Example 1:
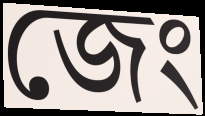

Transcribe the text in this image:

জেং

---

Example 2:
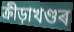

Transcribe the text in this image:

ক্ৰীড়াখণ্ডৰ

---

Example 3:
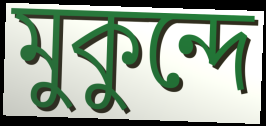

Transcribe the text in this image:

মুকুন্দে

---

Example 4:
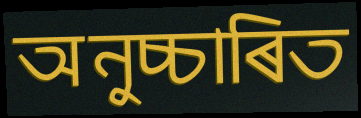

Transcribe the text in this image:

অনুচ্চাৰিত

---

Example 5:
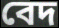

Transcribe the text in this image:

বেদ